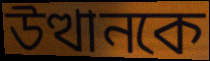
উত্থানকে